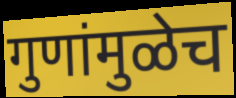
गुणांमुळेच